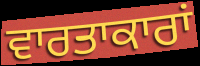
ਵਾਰਤਾਕਾਰਾਂ